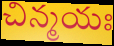
చిన్మయః